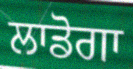
ਲਾਡੋਗਾ